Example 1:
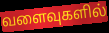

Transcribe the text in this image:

வளைவுகளில்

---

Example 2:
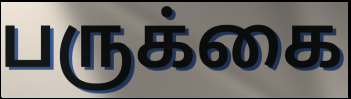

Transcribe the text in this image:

பருக்கை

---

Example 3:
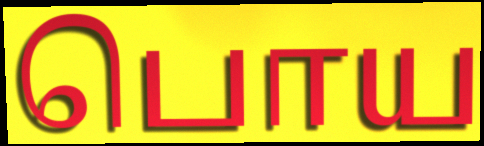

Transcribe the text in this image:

பொய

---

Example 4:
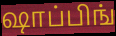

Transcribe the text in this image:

ஷாப்பிங்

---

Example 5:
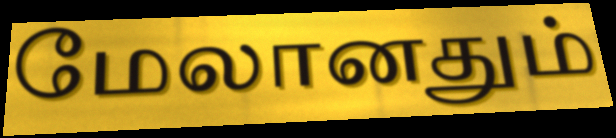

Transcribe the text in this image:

மேலானதும்